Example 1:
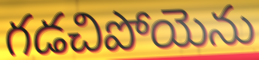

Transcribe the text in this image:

గడచిపోయెను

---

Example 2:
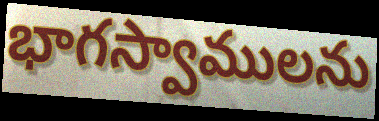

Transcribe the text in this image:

భాగస్వాములను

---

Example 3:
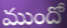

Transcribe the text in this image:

ముందో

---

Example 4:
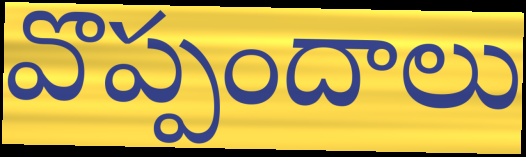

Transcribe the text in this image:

వొప్పందాలు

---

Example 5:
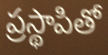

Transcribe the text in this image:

ప్రస్థాపితో